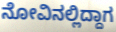
ನೋವಿನಲ್ಲಿದ್ದಾಗ